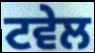
ਟਵੇਲ